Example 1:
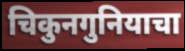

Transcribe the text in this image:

चिकुनगुनियाचा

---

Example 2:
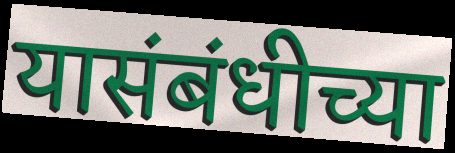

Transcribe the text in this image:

यासंबंधीच्या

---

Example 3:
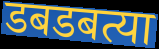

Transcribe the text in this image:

डबडबत्या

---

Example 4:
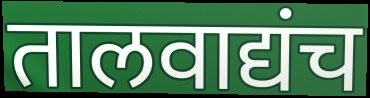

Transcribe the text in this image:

तालवाद्यंच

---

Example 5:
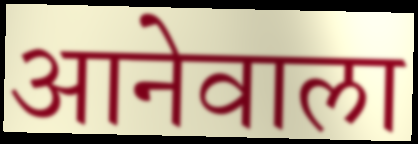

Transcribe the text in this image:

आनेवाला